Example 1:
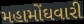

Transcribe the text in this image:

મહામોંઘવારી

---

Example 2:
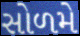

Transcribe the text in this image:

સોળમે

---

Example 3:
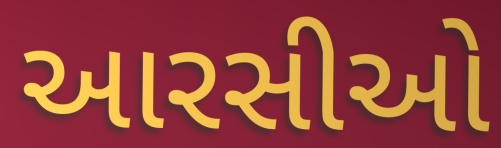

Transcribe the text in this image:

આરસીઓ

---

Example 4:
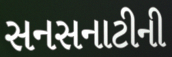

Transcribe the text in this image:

સનસનાટીની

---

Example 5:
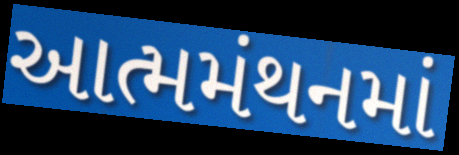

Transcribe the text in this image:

આત્મમંથનમાં